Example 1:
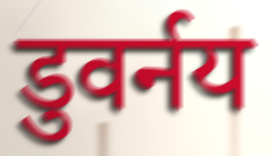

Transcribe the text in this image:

डुवर्नय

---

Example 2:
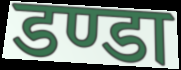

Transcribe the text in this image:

डण्डा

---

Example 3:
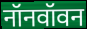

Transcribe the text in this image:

नॉनवॉवन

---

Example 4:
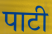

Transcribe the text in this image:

पाटी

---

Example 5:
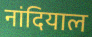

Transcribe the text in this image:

नांदियाल